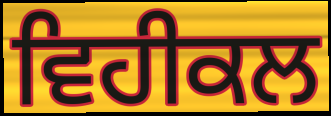
ਵਿਹੀਕਲ